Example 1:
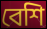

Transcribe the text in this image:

বেশি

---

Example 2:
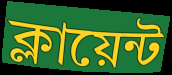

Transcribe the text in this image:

ক্লায়েন্ট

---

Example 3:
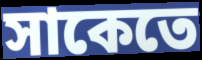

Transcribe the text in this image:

সাকেতে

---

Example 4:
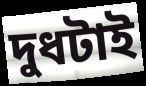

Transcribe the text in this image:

দুধটাই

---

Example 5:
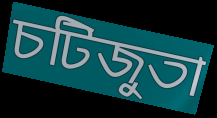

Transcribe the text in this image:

চটিজুতা